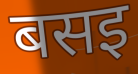
बसइ